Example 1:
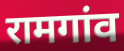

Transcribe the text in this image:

रामगांव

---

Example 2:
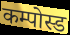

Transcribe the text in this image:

कम्पोस्ड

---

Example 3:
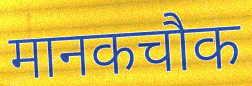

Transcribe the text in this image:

मानकचौक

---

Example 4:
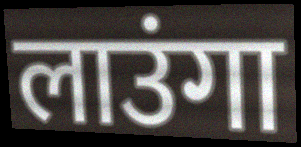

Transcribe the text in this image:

लाउंगा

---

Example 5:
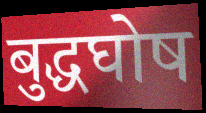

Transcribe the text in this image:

बुद्धघोष